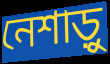
নেশাড়ু